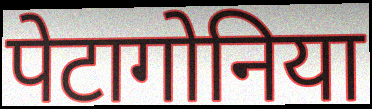
पेटागोनिया